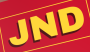
JND